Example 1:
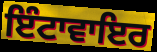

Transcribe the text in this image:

ਇੰਟਾਵਾਇਰ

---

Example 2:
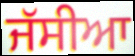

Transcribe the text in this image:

ਜੱਸੀਆ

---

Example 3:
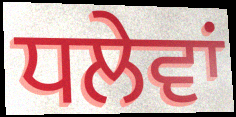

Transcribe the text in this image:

ਧਲੇਵਾਂ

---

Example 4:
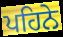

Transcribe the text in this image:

ਪਹਿਨੇ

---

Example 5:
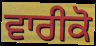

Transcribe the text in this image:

ਵਾਰੀਕੋ